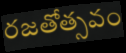
రజతోత్సవం